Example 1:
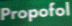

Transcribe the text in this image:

Propofol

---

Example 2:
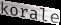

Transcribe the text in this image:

korale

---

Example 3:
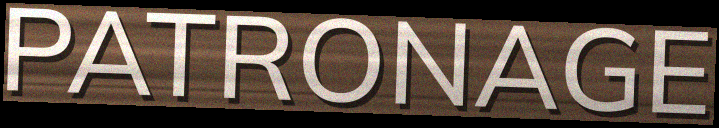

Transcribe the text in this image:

PATRONAGE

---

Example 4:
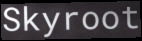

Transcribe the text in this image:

Skyroot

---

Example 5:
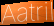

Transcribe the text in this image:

Aatril